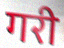
गरी